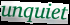
unquiet